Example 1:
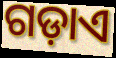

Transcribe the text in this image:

ଗଡ଼ାଏ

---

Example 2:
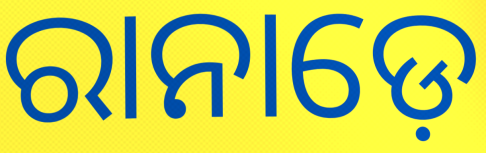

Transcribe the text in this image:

ରାନାଡ଼େ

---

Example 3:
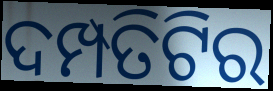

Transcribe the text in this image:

ଦମ୍ପତିଟିର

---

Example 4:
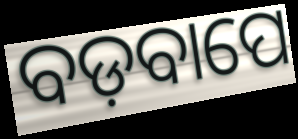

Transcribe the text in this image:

ବଡ଼ବାପେ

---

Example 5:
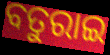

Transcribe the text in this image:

ବତୁରାଇ